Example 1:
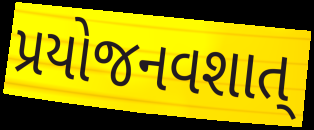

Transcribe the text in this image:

પ્રયોજનવશાત્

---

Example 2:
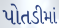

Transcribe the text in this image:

પોતડીમાં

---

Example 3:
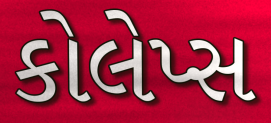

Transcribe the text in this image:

કોલેપ્સ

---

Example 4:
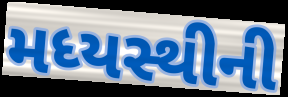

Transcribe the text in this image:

મધ્યસ્થીની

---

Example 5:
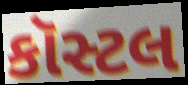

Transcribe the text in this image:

કૉસ્ટલ